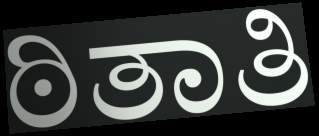
ಠಿತಾತಿ